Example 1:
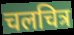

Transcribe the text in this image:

चलचित्र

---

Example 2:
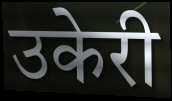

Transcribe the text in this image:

उकेरी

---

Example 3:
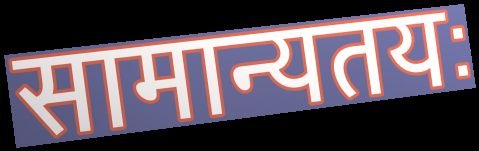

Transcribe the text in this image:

सामान्यतयः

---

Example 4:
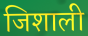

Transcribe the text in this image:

जिशाली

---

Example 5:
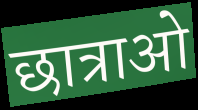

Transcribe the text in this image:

छात्राओ